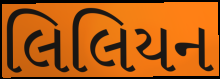
લિલિયન